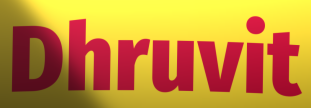
Dhruvit